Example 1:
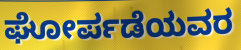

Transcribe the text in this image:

ಘೋರ್ಪಡೆಯವರ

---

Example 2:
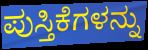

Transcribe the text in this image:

ಪುಸ್ತಿಕೆಗಳನ್ನು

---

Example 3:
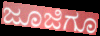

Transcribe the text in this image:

ಜೂಜಿಗೂ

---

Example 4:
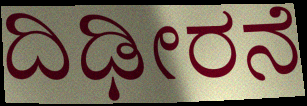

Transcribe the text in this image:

ದಿಢೀರನೆ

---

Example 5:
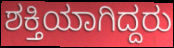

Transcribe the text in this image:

ಶಕ್ತಿಯಾಗಿದ್ದರು